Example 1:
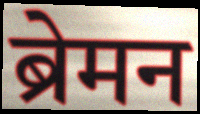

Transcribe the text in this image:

ब्रेमन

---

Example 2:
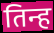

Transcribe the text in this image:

तिन्ह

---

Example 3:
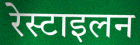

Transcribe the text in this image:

रेस्टाइलन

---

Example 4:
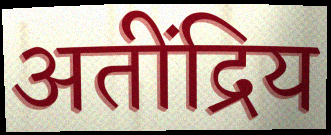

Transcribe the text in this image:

अतींद्रिय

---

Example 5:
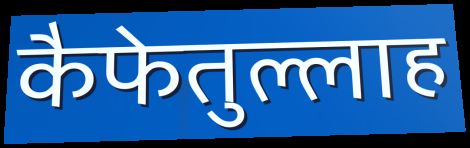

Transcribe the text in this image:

कैफेतुल्लाह